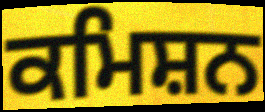
ਕਮਿਸ਼ਨ